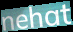
nehat